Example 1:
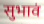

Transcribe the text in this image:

सुभावं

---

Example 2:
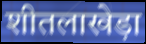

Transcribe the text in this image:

शीतलाखेड़ा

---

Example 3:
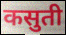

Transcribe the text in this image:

कसुती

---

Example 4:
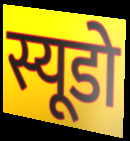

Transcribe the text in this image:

स्यूडो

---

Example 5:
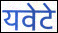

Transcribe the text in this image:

यवेटे